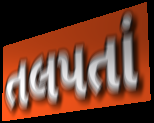
તલપતાં